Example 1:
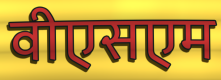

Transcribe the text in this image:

वीएसएम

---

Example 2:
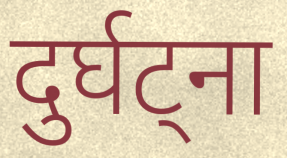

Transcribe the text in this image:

दुर्घट्ना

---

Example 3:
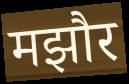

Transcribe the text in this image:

मझौर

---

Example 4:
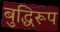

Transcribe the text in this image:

बुद्धिरूप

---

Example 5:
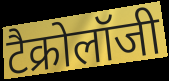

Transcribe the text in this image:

टैक्रोलॉजी